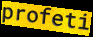
profeti